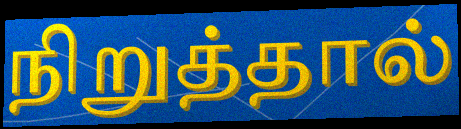
நிறுத்தால்